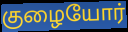
குழையோர்